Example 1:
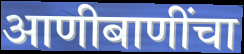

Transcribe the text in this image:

आणीबाणींचा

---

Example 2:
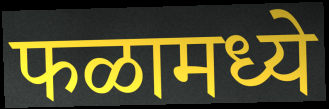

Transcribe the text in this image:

फळामध्ये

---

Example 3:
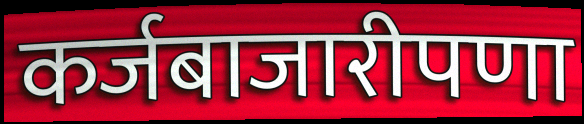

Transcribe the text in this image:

कर्जबाजारीपणा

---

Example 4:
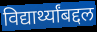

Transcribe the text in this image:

विद्यार्थ्यांबद्दल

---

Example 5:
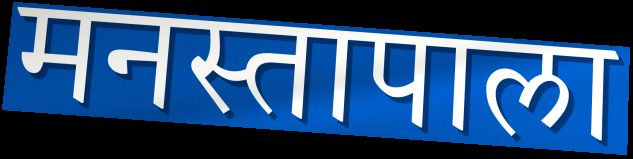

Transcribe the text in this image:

मनस्तापाला